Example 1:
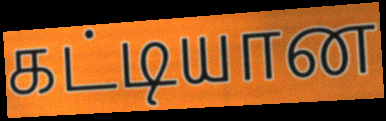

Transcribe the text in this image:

கட்டியான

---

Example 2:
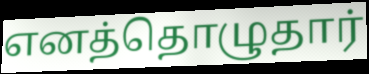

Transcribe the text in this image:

எனத்தொழுதார்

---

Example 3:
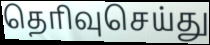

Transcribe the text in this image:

தெரிவுசெய்து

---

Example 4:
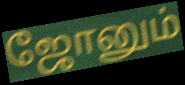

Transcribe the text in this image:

ஜோனும்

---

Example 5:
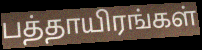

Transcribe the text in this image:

பத்தாயிரங்கள்